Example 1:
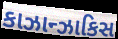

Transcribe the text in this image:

કાઝાન્ઝાકિસ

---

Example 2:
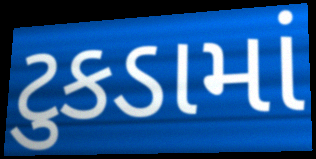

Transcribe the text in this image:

ટુકડામાં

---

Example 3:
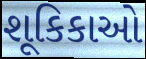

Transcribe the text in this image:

શૂકિકાઓ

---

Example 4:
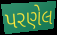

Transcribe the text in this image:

પરણેલ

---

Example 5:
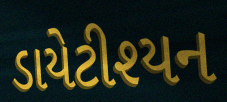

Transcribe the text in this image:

ડાયેટીશ્યન